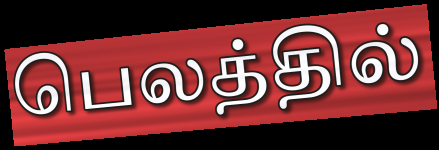
பெலத்தில்